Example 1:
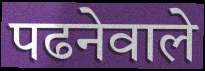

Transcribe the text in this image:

पढनेवाले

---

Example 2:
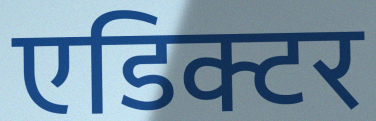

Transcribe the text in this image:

एडिक्टर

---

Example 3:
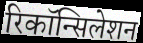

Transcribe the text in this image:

रिकॉन्सिलेशन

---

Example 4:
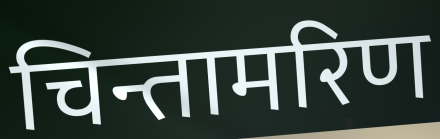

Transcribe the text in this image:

चिन्तामरिण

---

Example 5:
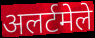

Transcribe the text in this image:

अलर्टमेले